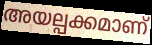
അയല്പക്കമാണ്